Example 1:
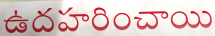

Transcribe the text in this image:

ఉదహరించాయి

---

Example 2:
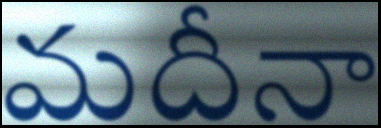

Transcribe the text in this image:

మదీనా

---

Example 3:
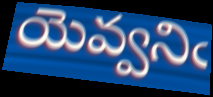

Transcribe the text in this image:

యెవ్వనిఁ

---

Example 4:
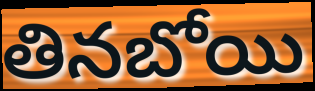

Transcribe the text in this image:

తినబోయి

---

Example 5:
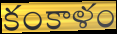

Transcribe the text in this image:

కంకాళం